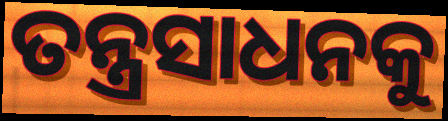
ତନ୍ତ୍ରସାଧନକୁ